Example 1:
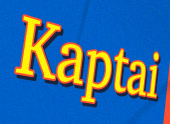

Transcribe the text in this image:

Kaptai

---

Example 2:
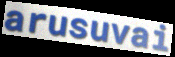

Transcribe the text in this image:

arusuvai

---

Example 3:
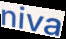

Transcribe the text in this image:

niva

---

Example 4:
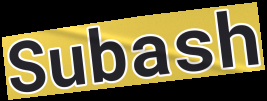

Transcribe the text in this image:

Subash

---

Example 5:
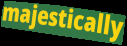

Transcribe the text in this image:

majestically